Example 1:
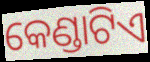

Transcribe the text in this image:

କେଣ୍ଡାଟିଏ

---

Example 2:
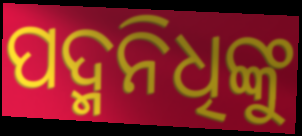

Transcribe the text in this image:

ପଦ୍ମନିଧିଙ୍କୁ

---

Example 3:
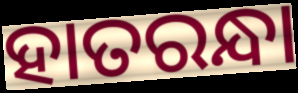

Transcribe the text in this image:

ହାତରନ୍ଧା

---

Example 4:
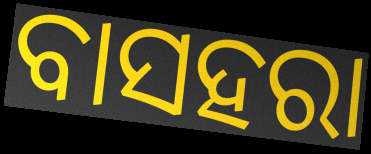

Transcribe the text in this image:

ବାସହରା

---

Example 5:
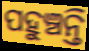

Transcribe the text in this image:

ପହୁଞ୍ଚନ୍ତି